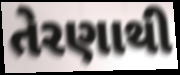
તેરણાથી